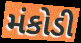
મંકોડી